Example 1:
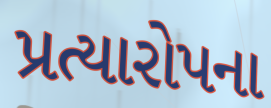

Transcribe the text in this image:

પ્રત્યારોપના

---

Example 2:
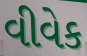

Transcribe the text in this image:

વીવેક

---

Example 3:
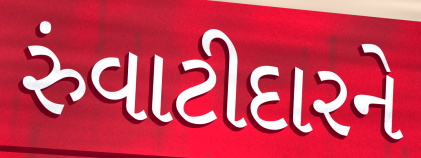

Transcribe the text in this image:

રુંવાટીદારને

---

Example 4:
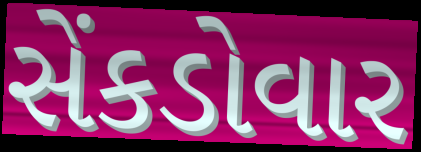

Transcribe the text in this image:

સેંકડોવાર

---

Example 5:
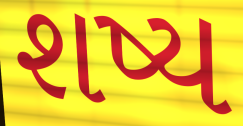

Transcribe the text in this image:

શષ્ય